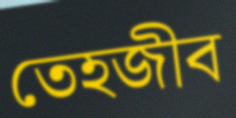
তেহজীব